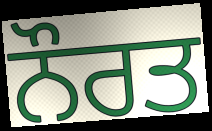
ਨੌਰਤ